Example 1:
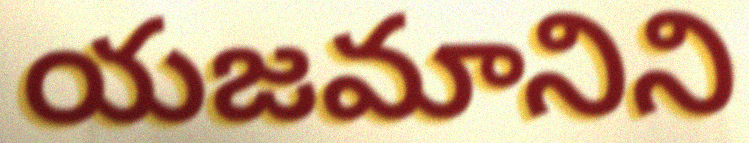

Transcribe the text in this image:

యజమానిని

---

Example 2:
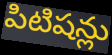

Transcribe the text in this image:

పిటిషన్లు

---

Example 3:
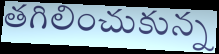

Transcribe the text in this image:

తగిలించుకున్న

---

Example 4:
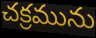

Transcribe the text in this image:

చక్రమును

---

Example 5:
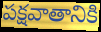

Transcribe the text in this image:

పక్షవాతానికి